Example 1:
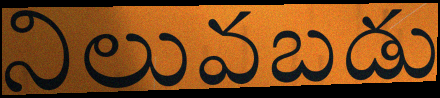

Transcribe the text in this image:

నిలువబడు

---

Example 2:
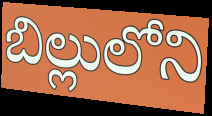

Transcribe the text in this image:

బిల్లులోని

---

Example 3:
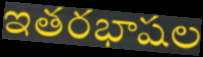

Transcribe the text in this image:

ఇతరభాషల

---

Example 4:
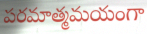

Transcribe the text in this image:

పరమాత్మమయంగా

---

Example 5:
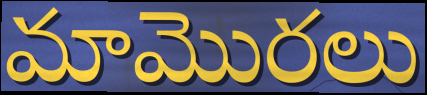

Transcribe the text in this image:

మామొరలు